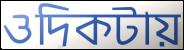
ওদিকটায়